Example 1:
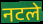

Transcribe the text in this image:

नटले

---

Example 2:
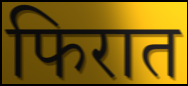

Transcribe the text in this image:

फिरात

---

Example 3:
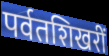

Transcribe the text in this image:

पर्वतशिखरीं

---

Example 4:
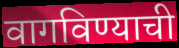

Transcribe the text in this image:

वागविण्याची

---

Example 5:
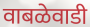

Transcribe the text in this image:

वाबळेवाडी